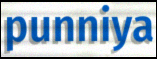
punniya